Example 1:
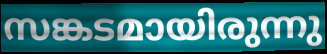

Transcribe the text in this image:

സങ്കടമായിരുന്നു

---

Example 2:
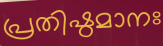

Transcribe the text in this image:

പ്രതിഷ്ഠമാനഃ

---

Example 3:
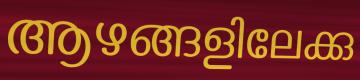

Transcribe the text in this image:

ആഴങ്ങളിലേക്കു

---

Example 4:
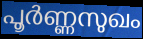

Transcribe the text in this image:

പൂർണ്ണസുഖം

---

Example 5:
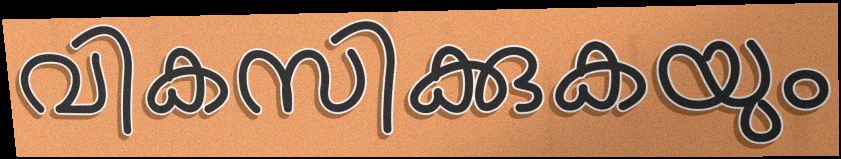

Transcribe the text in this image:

വികസിക്കുകയും